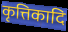
कृत्तिकादि